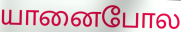
யானைபோல